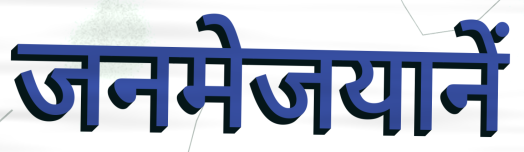
जनमेजयानें